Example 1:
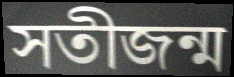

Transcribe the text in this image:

সতীজন্ম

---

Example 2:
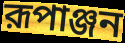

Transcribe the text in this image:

রূপাঞ্জন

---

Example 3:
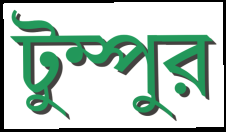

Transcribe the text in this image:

টুম্পুর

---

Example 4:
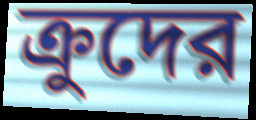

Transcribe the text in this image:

ক্রুদের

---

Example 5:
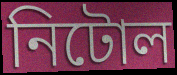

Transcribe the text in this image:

নিটোল